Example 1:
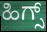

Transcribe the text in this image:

ಹಿಗ್ಸ್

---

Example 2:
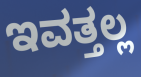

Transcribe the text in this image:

ಇವತ್ತಲ್ಲ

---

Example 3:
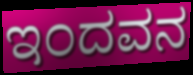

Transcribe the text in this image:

ಇಂದವನ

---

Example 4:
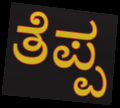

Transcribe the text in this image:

ತೆಪ್ಪ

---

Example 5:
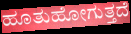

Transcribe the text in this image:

ಹೂತುಹೋಗುತ್ತದೆ